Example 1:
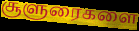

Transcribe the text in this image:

சூளுரைகளை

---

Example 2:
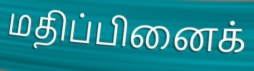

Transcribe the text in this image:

மதிப்பினைக்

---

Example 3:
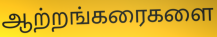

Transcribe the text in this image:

ஆற்றங்கரைகளை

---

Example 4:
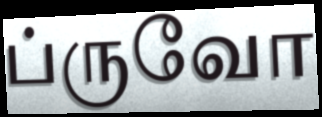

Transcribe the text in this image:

ப்ருவோ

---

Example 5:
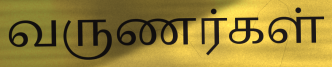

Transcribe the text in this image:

வருணர்கள்